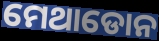
ମେଥାଡୋନ